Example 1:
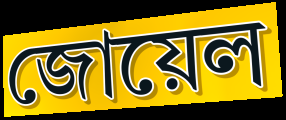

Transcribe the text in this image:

জোয়েল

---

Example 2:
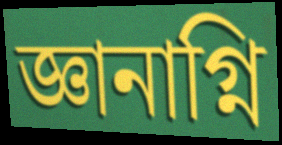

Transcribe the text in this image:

জ্ঞানাগ্নি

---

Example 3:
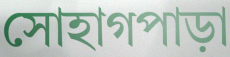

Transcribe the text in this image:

সোহাগপাড়া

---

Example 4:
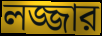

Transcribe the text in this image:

লজ্জার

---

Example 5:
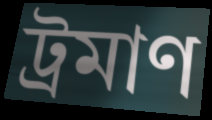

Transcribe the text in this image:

ট্রমাণ